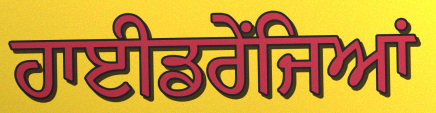
ਹਾਈਡਰੇਂਜਿਆਂ